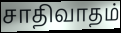
சாதிவாதம்